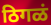
ठिगळं